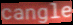
cangle